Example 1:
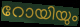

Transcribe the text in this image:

റോയിയും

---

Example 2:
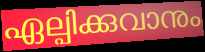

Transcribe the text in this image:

ഏല്പിക്കുവാനും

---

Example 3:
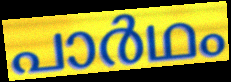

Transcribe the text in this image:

പാർഥം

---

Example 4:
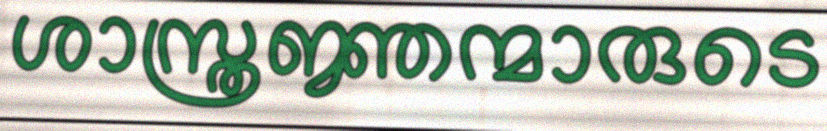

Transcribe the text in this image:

ശാസ്ത്രജ്ഞന്മാരുടെ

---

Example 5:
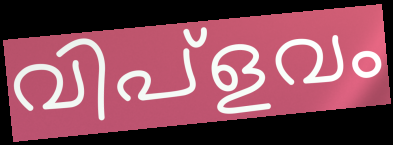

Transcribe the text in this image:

വിപ്ളവം